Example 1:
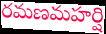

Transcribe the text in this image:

రమణమహర్షి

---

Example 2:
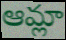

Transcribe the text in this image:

ఆమ్లా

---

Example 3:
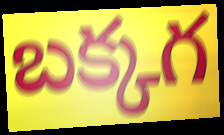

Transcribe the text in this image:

బక్కగ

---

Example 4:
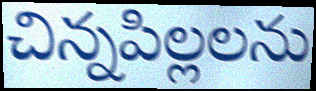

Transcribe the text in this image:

చిన్నపిల్లలను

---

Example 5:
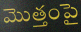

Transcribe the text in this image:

మొత్తంపై